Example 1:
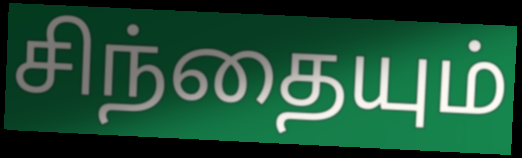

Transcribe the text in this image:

சிந்தையும்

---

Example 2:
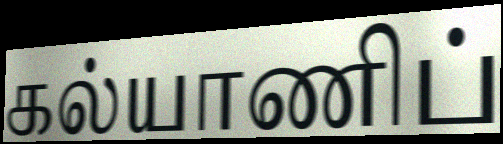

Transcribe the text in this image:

கல்யாணிப்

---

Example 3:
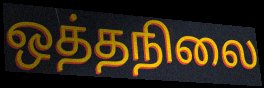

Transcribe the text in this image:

ஒத்தநிலை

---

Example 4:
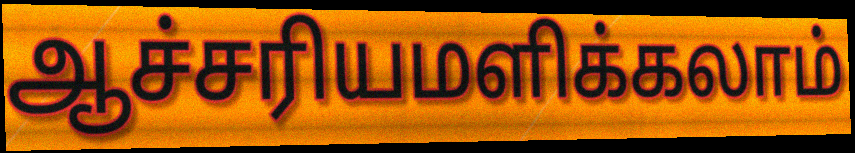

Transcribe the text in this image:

ஆச்சரியமளிக்கலாம்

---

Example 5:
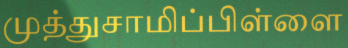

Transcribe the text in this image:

முத்துசாமிப்பிள்ளை